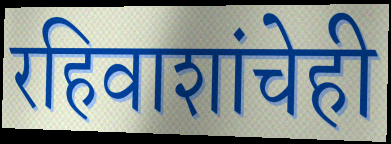
रहिवाशांचेही